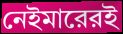
নেইমারেরই